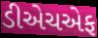
ડીએચએફ